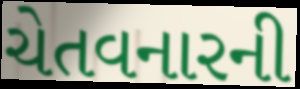
ચેતવનારની